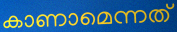
കാണാമെന്നത്